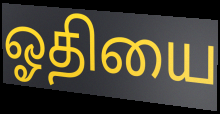
ஓதியை